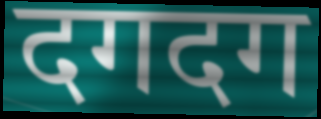
दगदग